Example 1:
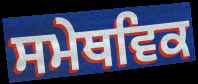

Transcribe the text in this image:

ਸਮੇਥਵਿਕ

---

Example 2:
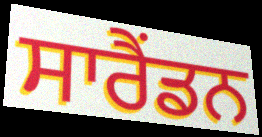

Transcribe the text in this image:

ਸਾਰੈਂਡਨ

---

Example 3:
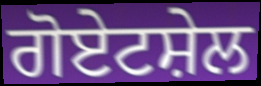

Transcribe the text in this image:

ਗੋਏਟਸ਼ੇਲ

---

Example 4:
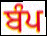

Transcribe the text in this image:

ਬੰਪ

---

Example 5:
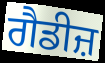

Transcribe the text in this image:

ਗੈਡੀਜ਼